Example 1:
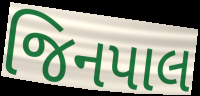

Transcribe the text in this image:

જિનપાલ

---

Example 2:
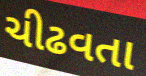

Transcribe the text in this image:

ચીઢવતા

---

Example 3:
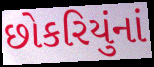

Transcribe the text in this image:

છોકરિયુંનાં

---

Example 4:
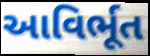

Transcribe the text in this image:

આવિર્ભૂત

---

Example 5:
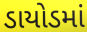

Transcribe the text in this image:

ડાયોડમાં